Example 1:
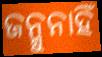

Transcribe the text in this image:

ଜନ୍ମୁନାହିଁ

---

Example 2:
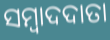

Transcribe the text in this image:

ସମ୍ବାଦଦାତା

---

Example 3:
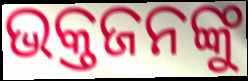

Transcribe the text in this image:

ଭକ୍ତଜନଙ୍କୁ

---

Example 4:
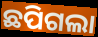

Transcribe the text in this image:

ଛପିଗଲା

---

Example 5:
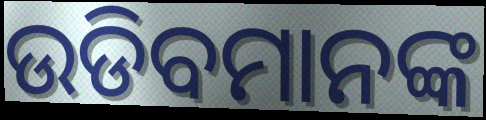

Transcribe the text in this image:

ଉଡିବମାନଙ୍କ